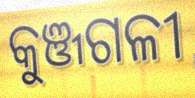
କୁଞ୍ଜଗଳୀ